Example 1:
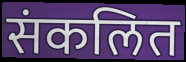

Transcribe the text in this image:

संकलित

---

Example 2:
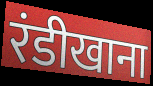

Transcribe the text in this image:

रंडीखाना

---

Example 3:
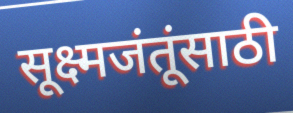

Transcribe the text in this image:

सूक्ष्मजंतूंसाठी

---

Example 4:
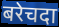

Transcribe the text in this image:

बरेचदा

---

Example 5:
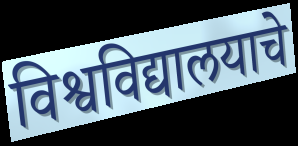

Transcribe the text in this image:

विश्वविद्यालयाचे